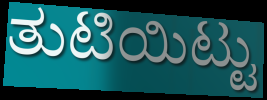
ತುಟಿಯಿಟ್ಟು